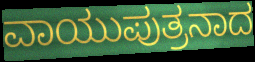
ವಾಯುಪುತ್ರನಾದ